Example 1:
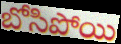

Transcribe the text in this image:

బోసిపోయి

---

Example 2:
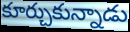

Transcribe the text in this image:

కూర్చుకున్నాడు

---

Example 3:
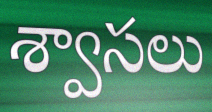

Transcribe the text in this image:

శ్వాసలు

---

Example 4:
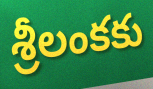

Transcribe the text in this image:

శ్రీలంకకు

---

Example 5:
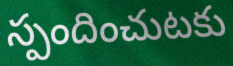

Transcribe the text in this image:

స్పందించుటకు